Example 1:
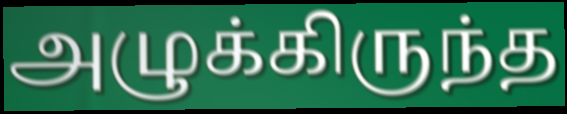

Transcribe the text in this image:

அழுக்கிருந்த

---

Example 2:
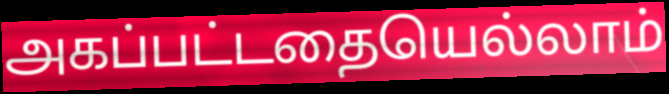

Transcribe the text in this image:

அகப்பட்டதையெல்லாம்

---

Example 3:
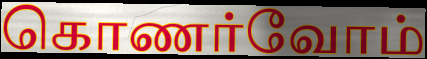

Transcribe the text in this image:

கொணர்வோம்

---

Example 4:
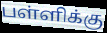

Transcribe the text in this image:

பள்ளிக்கு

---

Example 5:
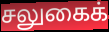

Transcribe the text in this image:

சலுகைக்